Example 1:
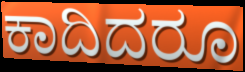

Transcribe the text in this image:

ಕಾದಿದರೂ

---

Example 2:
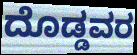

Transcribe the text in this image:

ದೊಡ್ಡವರ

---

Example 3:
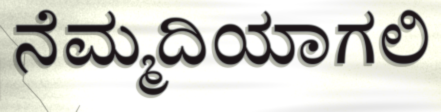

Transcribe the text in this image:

ನೆಮ್ಮದಿಯಾಗಲಿ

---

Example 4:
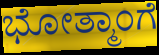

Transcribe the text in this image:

ಭೋತ್ಮಾಂಗೆ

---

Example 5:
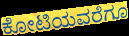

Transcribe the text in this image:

ಕೋಟಿಯವರೆಗೂ